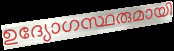
ഉദ്യോഗസ്ഥരുമായി